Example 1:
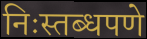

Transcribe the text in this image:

निःस्तब्धपणे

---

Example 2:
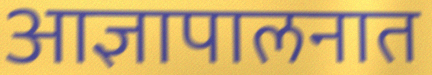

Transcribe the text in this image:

आज्ञापालनात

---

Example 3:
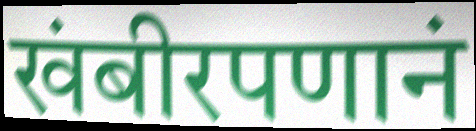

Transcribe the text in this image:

खंबीरपणानं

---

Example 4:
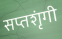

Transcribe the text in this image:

सप्तशृंगी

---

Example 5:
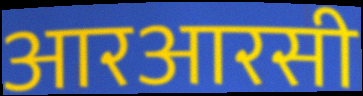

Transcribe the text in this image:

आरआरसी